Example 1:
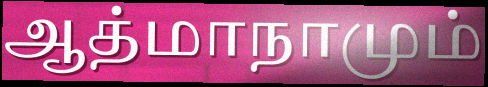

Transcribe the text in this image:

ஆத்மாநாமும்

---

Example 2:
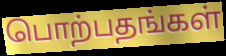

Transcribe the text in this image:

பொற்பதங்கள்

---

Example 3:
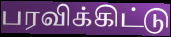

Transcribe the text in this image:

பரவிக்கிட்டு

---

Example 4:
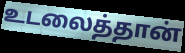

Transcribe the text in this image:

உடலைத்தான்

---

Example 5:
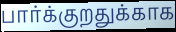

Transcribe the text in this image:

பார்க்குறதுக்காக